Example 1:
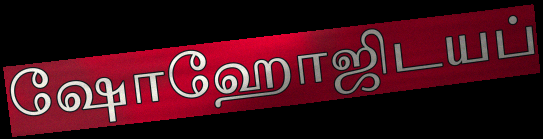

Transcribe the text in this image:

ஷோஹோஜிடயப்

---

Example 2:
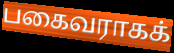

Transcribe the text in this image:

பகைவராகக்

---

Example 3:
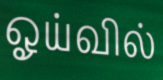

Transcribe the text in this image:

ஓய்வில்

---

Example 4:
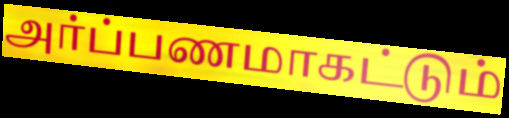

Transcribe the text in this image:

அர்ப்பணமாகட்டும்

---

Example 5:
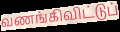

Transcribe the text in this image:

வணங்கிவிட்டுப்